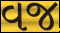
વજ